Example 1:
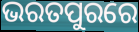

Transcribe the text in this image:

ଭରତପୁରରେ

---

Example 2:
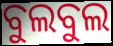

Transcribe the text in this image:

ବୁଲବୁଲ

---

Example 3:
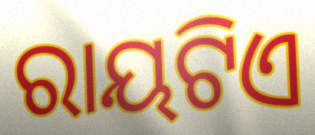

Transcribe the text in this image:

ରାୟଟିଏ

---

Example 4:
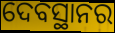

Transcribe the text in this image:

ଦେବସ୍ଥାନର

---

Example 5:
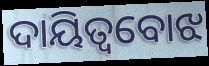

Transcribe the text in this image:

ଦାୟିତ୍ୱବୋଝ